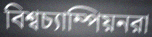
বিশ্বচ্যাম্পিয়নরা